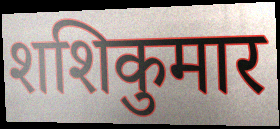
शशिकुमार